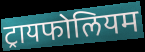
ट्रायफोलियम